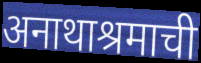
अनाथाश्रमाची